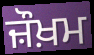
ਜ਼ੌਖ਼ਮ